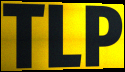
TLP